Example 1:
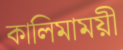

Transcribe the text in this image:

কালিমাময়ী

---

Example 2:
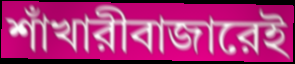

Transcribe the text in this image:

শাঁখারীবাজারেই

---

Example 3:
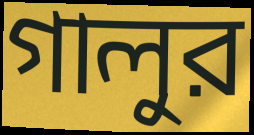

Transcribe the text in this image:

গালুর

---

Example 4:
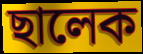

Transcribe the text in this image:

ছালেক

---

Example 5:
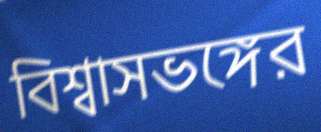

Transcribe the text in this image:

বিশ্বাসভঙ্গের